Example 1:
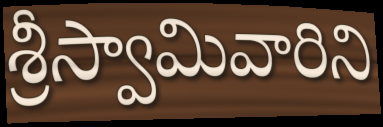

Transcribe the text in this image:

శ్రీస్వామివారిని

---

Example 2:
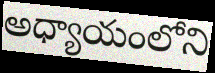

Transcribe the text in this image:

అధ్యాయంలోని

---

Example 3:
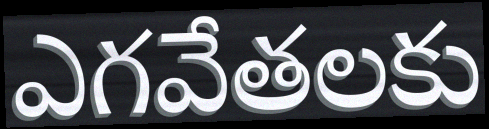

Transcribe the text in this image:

ఎగవేతలకు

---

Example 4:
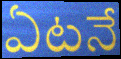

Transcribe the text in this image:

ఏటనే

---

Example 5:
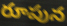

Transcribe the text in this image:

రూపున